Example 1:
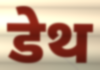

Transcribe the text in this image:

डेथ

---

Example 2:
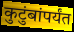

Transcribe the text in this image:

कुटुंबांपर्यंत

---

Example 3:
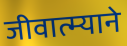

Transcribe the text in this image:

जीवात्म्याने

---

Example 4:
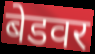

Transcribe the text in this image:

बेडवर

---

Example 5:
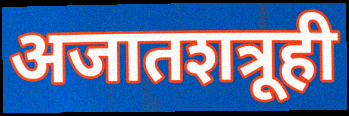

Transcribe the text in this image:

अजातशत्रूही